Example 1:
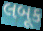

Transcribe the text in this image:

લબૂક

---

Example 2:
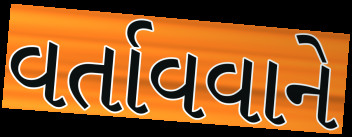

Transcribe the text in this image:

વર્તાવવાને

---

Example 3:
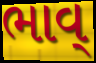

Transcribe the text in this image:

ભાવ્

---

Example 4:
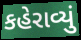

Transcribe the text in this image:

કહેરાવ્યું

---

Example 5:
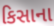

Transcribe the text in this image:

કિસાના